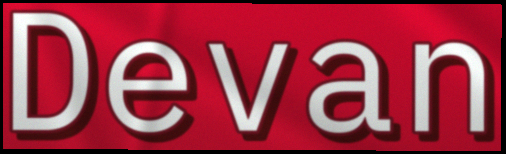
Devan